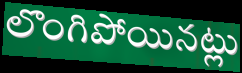
లొంగిపోయినట్లు